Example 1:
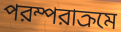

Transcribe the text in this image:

পরম্পরাক্রমে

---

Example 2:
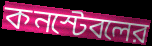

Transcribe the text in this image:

কনস্টেবলের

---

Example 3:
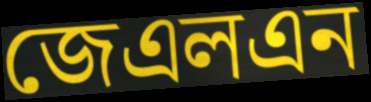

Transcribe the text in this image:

জেএলএন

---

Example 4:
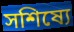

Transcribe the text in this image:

সশিষ্যে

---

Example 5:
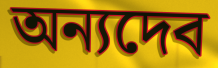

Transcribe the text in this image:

অন্যদেব